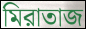
মিরাতাজ